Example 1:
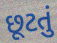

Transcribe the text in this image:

છૂટતું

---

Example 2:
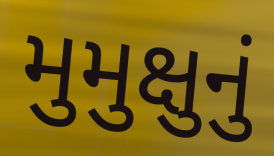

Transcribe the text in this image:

મુમુક્ષુનું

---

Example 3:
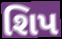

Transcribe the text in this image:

શિપ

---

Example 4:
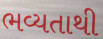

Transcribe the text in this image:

ભવ્યતાથી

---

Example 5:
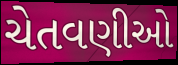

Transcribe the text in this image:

ચેતવણીઓ